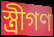
স্ত্রীগণ